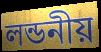
লন্ডনীয়